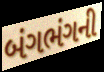
બંગભંગની